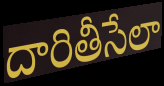
దారితీసేలా